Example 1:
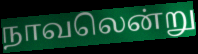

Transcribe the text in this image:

நாவலென்று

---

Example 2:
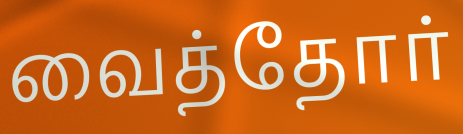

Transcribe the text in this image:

வைத்தோர்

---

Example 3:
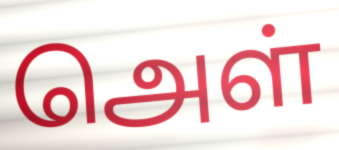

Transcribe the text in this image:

அெள்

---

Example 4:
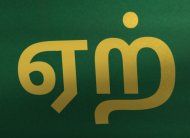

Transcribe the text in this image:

ஏற்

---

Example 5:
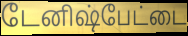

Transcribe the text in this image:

டேனிஷ்பேட்டை